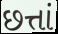
છત્તાં